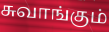
சுவாங்கும்